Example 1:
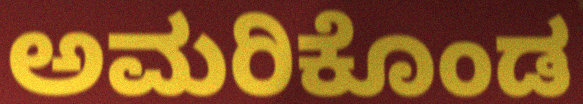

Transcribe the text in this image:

ಅಮರಿಕೊಂಡ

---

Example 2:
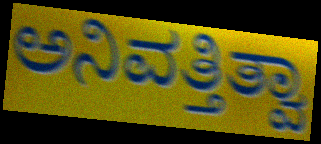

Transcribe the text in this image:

ಅನಿವತ್ತಿತ್ವಾ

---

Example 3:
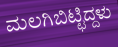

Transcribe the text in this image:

ಮಲಗಿಬಿಟ್ಟಿದ್ದಳು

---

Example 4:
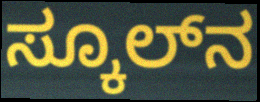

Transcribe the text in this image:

ಸ್ಕೂಲ್‌ನ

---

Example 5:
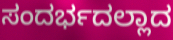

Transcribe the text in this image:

ಸಂದರ್ಭದಲ್ಲಾದ